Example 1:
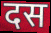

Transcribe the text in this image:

दस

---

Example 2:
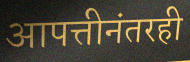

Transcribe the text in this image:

आपत्तीनंतरही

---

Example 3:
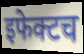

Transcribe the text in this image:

इफेक्टच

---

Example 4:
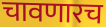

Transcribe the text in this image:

चावणारच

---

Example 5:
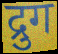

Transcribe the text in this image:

द्रुग